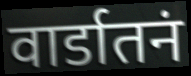
वार्डातनं